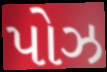
પોઝ